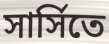
সার্সিতে